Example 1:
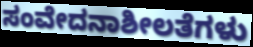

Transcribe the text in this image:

ಸಂವೇದನಾಶೀಲತೆಗಳು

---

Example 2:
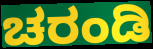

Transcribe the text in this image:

ಚರಂಡಿ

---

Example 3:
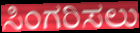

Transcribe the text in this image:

ಸಿಂಗರಿಸಲು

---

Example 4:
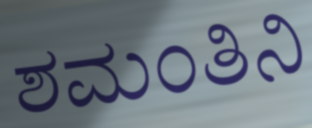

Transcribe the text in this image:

ಶಮಂತಿನಿ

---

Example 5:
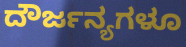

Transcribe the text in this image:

ದೌರ್ಜನ್ಯಗಳೂ